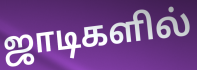
ஜாடிகளில்